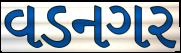
વડનગર